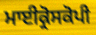
ਮਾਈਕ੍ਰੋਸਕੋਪੀ